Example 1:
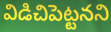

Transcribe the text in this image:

విడిచిపెట్టనని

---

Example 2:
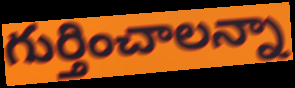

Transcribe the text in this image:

గుర్తించాలన్నా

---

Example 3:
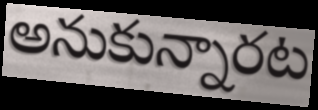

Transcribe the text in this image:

అనుకున్నారట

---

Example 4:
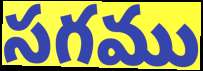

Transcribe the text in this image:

సగము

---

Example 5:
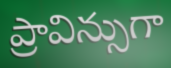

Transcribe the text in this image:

ప్రావిన్సుగా